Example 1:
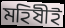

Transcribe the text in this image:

মহিষীই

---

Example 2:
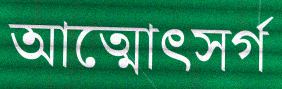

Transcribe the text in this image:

আত্মোৎসর্গ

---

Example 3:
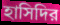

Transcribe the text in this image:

হাসিদির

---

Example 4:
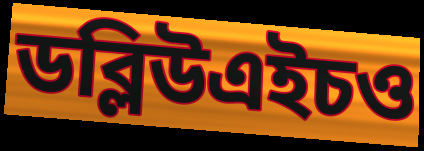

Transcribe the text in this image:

ডব্লিউএইচও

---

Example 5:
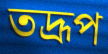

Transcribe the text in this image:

তদ্রূপ